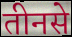
तीनसे